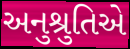
અનુશ્રુતિએ